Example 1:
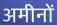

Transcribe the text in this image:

अमीनों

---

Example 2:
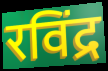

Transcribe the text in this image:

रविंद्र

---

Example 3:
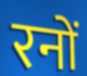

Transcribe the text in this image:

रनों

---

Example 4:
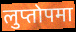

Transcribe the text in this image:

लुप्तोपमा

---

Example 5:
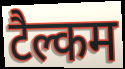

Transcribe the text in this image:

टैल्कम